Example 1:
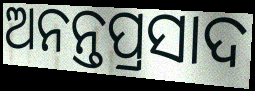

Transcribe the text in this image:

ଅନନ୍ତପ୍ରସାଦ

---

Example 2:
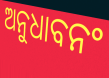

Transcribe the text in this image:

ଅନୁଧାବନଂ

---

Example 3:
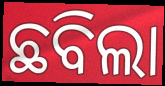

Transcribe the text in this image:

ଛବିଲା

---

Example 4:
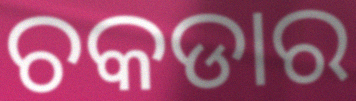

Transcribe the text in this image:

ଚକଡାର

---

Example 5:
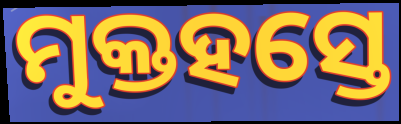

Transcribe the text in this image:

ମୁକ୍ତହସ୍ତେ